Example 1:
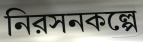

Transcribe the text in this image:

নিরসনকল্পে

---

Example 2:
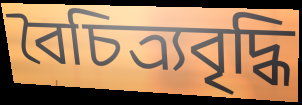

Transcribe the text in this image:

বৈচিত্র্যবৃদ্ধি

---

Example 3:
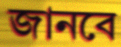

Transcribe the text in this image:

জানবে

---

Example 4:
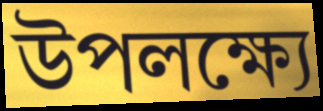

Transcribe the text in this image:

উপলক্ষ্যে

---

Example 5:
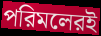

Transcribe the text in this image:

পরিমলেরই